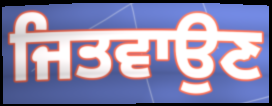
ਜਿਤਵਾਉਣ